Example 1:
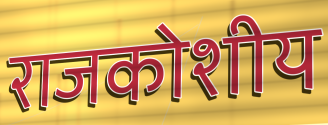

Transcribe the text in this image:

राजकोशीय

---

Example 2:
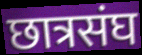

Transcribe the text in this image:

छात्रसंघ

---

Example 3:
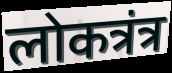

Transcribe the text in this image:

लोकत्रंत्र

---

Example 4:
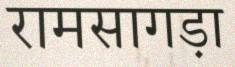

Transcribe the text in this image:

रामसागड़ा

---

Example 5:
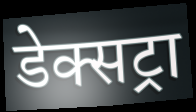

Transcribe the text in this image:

डेक्सट्रा